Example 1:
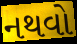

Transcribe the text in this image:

નથવો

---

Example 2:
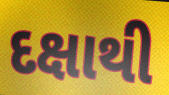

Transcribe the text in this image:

દક્ષાથી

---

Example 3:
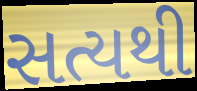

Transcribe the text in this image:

સત્યથી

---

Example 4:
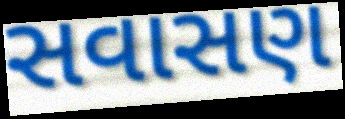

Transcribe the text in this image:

સવાસણ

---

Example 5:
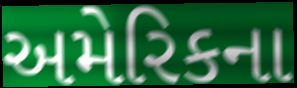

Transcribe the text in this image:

અમેરિકના